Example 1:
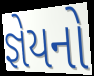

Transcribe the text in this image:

જ્ઞેયનો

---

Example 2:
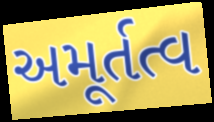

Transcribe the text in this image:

અમૂર્તત્વ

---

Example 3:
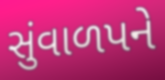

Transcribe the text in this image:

સુંવાળપને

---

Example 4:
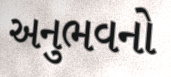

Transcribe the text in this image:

અનુભવનો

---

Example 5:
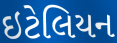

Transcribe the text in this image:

ઇટેલિયન